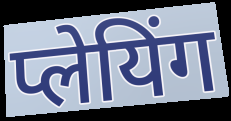
प्लेयिंग